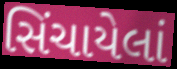
સિંચાયેલાં